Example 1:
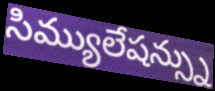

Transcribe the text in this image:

సిమ్యులేషన్స్ను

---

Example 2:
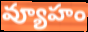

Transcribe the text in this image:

వ్యూహం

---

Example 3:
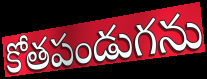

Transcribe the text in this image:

కోతపండుగను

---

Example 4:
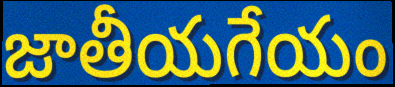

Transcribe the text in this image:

జాతీయగేయం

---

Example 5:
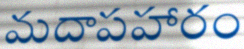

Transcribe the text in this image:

మదాపహారం